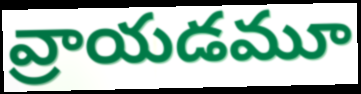
వ్రాయడమూ